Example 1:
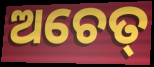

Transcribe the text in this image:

ଅଚେତ୍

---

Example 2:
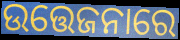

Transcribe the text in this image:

ଉତ୍ତେଜନାରେ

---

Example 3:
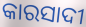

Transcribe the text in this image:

କାରସାଦୀ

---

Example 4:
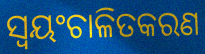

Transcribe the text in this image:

ସ୍ୱୟଂଚାଳିତକରଣ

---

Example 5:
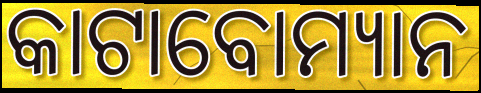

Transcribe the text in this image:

କାଟାବୋମ୍ୟାନ